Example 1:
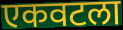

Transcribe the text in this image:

एकवटला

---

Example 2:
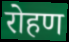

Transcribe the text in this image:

रोहण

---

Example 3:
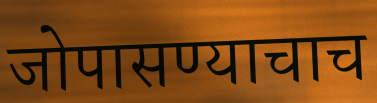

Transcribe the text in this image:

जोपासण्याचाच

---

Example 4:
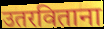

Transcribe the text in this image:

उतरविताना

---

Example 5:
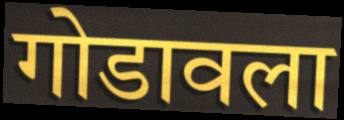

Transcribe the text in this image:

गोडावला